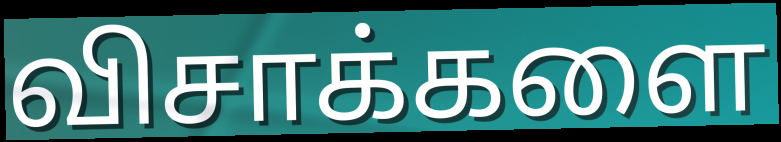
விசாக்களை